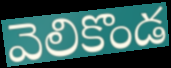
వెలికొండ